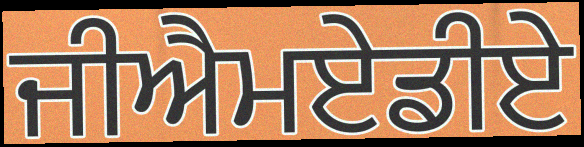
ਜੀਐਮਏਡੀਏ